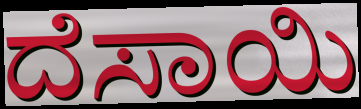
ದೆಸಾಯಿ